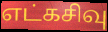
எட்கசிவு